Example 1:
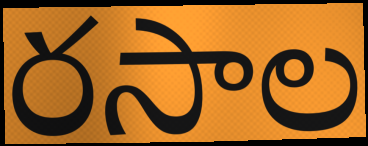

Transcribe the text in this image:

రసాల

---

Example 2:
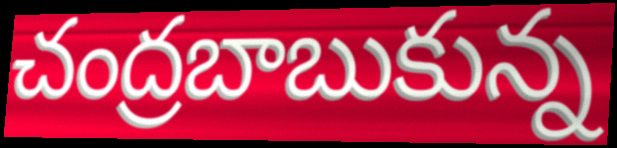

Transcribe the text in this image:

చంద్రబాబుకున్న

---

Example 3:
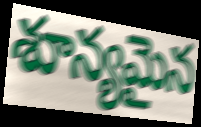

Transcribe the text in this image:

శూన్యమైన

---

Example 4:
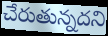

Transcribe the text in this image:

చేరుతున్నదని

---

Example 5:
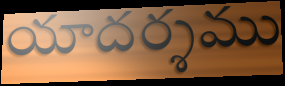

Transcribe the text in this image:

యాదర్శము